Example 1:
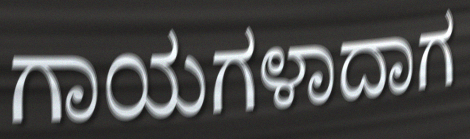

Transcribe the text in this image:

ಗಾಯಗಳಾದಾಗ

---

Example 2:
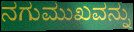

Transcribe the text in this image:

ನಗುಮುಖವನ್ನು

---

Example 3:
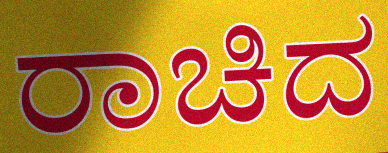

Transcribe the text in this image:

ರಾಚಿದ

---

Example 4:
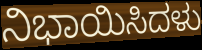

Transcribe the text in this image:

ನಿಭಾಯಿಸಿದಳು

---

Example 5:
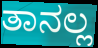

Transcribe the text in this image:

ತಾನಲ್ಲ